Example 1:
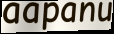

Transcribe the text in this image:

aapanu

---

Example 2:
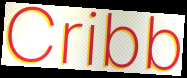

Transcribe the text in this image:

Cribb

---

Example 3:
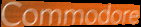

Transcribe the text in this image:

Commodore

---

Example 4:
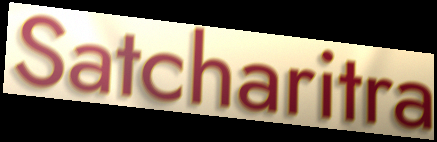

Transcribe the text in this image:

Satcharitra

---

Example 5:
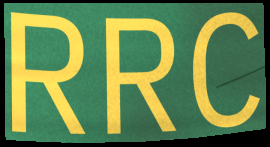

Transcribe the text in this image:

RRC